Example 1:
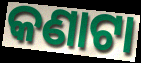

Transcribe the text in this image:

କଣାଟା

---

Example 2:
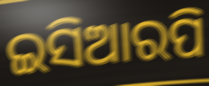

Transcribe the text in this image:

ଇସିଆରପି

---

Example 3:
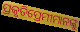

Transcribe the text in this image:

ପ୍ରକୃତିପ୍ରେମୀମାନଙ୍କୁ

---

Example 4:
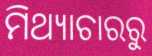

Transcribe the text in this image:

ମିଥ୍ୟାଚାରରୁ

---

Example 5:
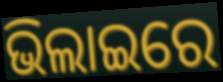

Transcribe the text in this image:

ଭିଲାଇରେ